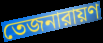
তেজনারায়ণ